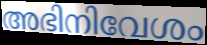
അഭിനിവേശം